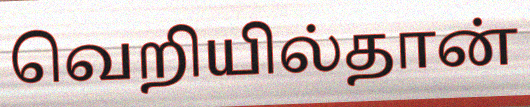
வெறியில்தான்